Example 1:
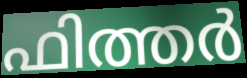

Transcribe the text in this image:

ഫിത്തർ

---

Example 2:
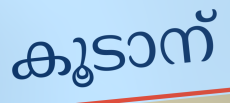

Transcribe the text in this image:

കൂടാന്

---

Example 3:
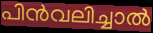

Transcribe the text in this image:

പിൻവലിച്ചാൽ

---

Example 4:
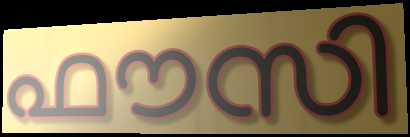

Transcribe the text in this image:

ഫൗസി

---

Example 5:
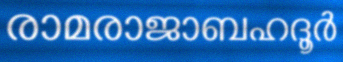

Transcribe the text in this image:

രാമരാജാബഹദൂർ